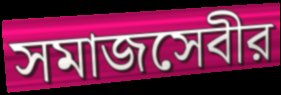
সমাজসেবীর